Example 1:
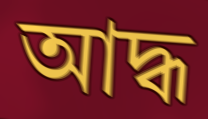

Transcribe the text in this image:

আদ্ধ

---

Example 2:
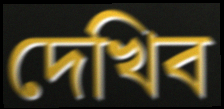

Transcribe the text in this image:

দেখিব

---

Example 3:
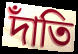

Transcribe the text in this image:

দাঁতি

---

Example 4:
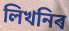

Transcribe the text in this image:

লিখনিৰ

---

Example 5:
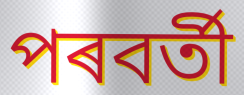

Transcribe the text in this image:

পৰবৰ্তী